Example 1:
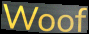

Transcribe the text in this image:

Woof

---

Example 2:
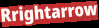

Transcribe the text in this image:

Rrightarrow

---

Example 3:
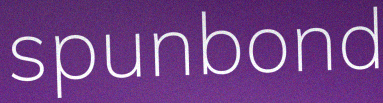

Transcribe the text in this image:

spunbond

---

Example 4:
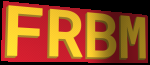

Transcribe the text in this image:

FRBM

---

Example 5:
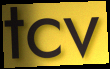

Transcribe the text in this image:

tcv